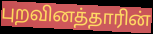
புறவினத்தாரின்